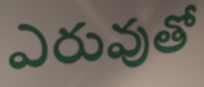
ఎరువుతో